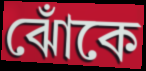
ঝোঁকে